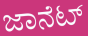
ಜಾನೆಟ್